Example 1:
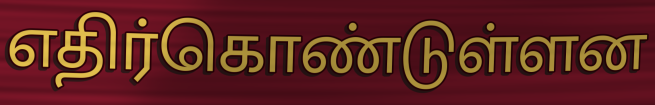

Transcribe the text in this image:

எதிர்கொண்டுள்ளன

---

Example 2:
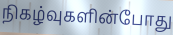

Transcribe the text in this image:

நிகழ்வுகளின்போது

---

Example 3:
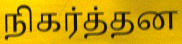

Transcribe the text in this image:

நிகர்த்தன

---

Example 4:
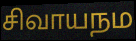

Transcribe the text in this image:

சிவாயநம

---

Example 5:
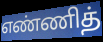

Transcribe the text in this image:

எண்ணித்